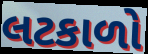
લટકાળો